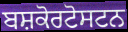
ਬਸ਼ਕੋਰਟੋਸਟਨ